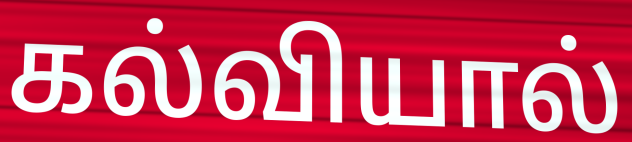
கல்வியால்